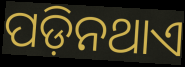
ପଡ଼ିନଥାଏ